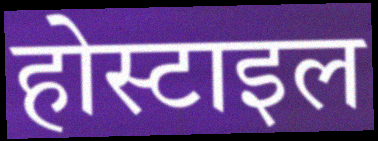
होस्टाइल